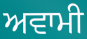
ਅਵਾਮੀ